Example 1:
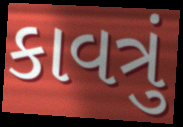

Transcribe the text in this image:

કાવત્રું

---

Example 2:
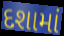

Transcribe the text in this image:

દશામાં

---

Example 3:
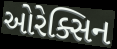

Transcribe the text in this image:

ઓરેક્સિન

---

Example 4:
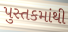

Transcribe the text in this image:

પુસ્તકમાંથી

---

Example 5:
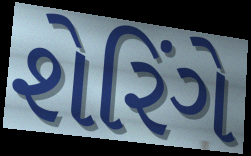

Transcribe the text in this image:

શેરિંગે